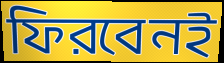
ফিরবেনই